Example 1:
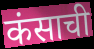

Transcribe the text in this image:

कंसाची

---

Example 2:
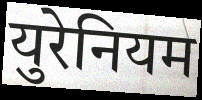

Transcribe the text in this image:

युरेनियम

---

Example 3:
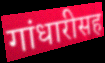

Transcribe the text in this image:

गांधारीसह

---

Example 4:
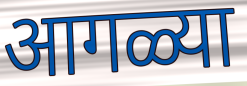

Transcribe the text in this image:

आगळ्या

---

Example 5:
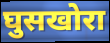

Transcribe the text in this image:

घुसखोरा